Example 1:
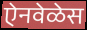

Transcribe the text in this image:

ऐनवेळेस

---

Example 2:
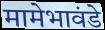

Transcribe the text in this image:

मामेभावंडे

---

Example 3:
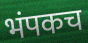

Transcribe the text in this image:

भंपकच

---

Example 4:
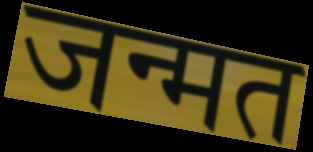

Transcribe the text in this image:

जन्मत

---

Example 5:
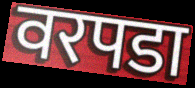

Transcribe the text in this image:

वरपडा